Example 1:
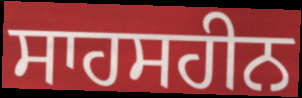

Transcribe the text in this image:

ਸਾਹਸਹੀਨ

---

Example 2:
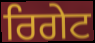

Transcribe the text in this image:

ਰਿਗੇਟ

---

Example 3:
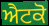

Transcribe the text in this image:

ਐਟਕੋ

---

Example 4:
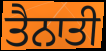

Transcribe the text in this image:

ਤੈਨਾਤੀ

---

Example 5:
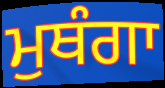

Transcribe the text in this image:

ਮੁਥੰਗਾ